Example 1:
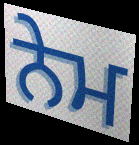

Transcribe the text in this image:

ਨੇਮ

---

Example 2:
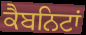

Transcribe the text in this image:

ਕੈਬਨਿਟਾਂ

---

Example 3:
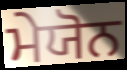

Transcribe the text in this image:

ਮੇਯੋਨ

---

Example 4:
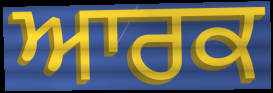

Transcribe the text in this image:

ਆਰਕ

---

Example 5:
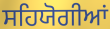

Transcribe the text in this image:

ਸਹਿਯੋਗੀਆਂ